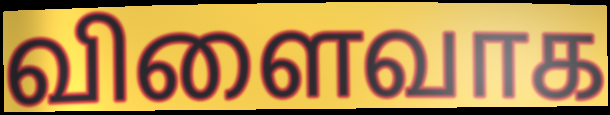
விளைவாக